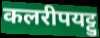
कलरीपयट्टु